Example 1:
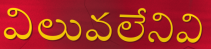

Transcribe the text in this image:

విలువలేనివి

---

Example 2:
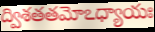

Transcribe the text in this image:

ద్విశతతమోఽధ్యాయః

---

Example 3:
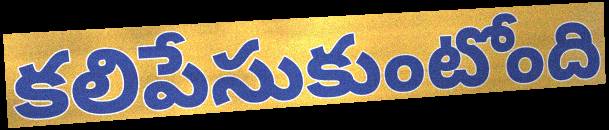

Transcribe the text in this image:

కలిపేసుకుంటోంది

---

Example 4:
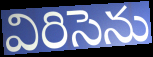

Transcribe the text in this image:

విరిసెను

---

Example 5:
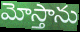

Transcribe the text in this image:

మోస్తాను